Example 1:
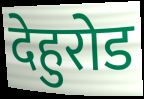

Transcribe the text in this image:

देहुरोड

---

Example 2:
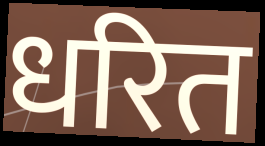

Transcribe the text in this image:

धरित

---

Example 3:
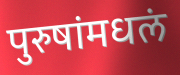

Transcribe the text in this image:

पुरुषांमधलं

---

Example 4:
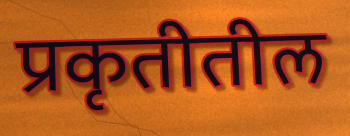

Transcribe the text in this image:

प्रकृतीतील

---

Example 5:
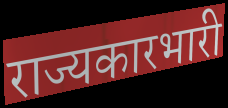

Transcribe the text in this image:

राज्यकारभारी